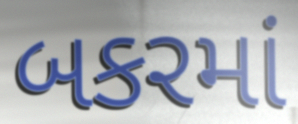
બકરમાં